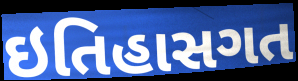
ઇતિહાસગત